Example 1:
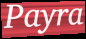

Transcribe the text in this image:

Payra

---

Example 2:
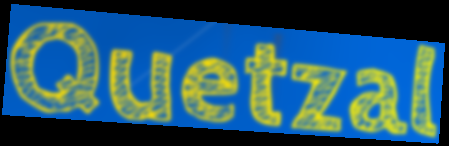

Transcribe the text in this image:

Quetzal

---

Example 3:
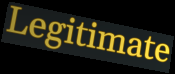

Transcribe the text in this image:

Legitimate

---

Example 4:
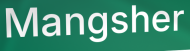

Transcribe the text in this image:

Mangsher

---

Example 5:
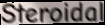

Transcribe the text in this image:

Steroidal